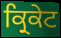
ਕ੍ਰਿਕੇਟ